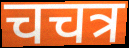
चचत्र